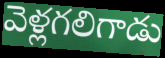
వెళ్లగలిగాడు